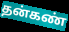
தன்கண்